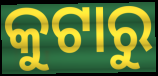
କୁଟାରୁ